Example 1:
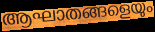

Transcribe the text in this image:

ആഘാതങ്ങളെയും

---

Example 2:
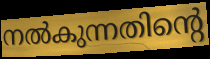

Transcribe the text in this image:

നൽകുന്നതിന്റെ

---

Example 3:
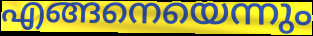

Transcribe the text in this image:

എങ്ങനെയെന്നും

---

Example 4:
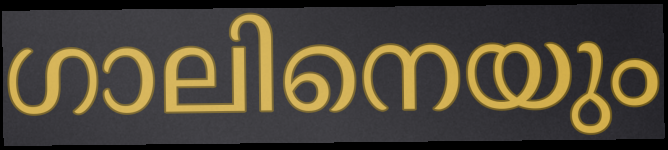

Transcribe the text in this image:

ഗാലിനെയും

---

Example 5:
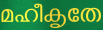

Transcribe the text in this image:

മഹീകൃതേ